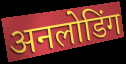
अनलोडिंग